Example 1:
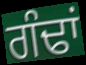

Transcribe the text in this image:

ਗੰਢਾਂ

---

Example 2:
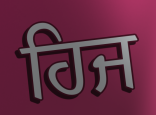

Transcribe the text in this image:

ਹਿਜ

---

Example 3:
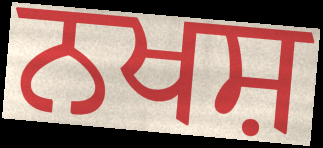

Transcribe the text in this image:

ਨਖਸ਼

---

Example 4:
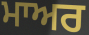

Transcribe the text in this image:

ਮਾਅਰ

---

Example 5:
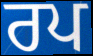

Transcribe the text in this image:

ਰਪ